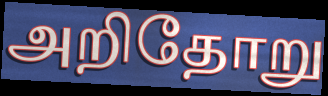
அறிதோறு